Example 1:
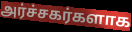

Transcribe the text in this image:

அர்ச்சகர்களாக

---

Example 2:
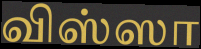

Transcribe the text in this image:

விஸ்ஸா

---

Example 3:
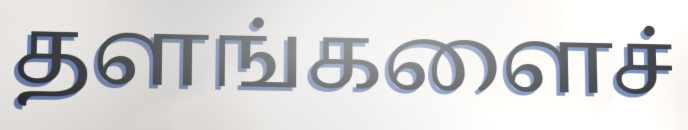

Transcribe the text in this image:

தளங்களைச்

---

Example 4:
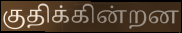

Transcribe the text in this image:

குதிக்கின்றன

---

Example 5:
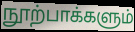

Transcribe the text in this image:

நூற்பாக்களும்